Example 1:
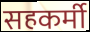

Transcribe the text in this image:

सहकर्मी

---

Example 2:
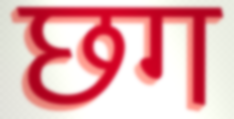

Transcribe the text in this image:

छग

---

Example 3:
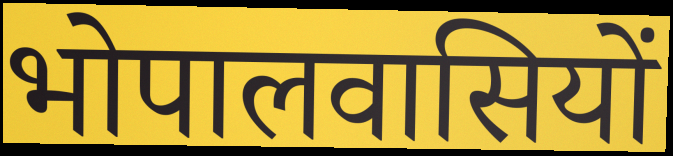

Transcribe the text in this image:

भोपालवासियों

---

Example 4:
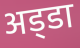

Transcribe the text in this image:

अड्‌डा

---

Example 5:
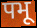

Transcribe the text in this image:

पभू